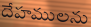
దేహములను